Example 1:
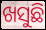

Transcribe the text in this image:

ଖସୁଛି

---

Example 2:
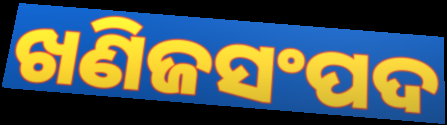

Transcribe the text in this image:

ଖଣିଜସଂପଦ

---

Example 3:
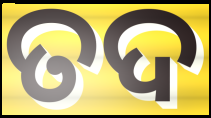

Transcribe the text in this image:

ତଦ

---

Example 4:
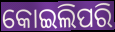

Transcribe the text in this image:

କୋଇଲିପରି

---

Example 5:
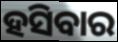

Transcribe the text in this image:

ହସିବାର